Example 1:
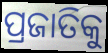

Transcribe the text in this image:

ପ୍ରଜାତିକୁ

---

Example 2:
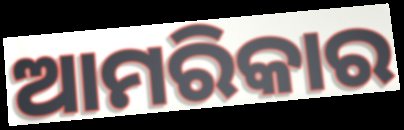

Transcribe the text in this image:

ଆମରିକାର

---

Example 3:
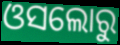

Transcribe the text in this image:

ଓସଲୋରୁ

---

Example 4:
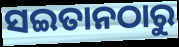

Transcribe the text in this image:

ସଇତାନଠାରୁ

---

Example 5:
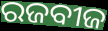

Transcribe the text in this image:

ରଜବୀଜ